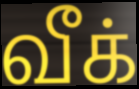
வீக்